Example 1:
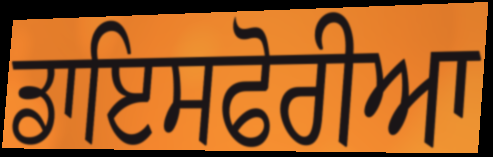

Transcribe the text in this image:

ਡਾਇਸਫੋਰੀਆ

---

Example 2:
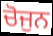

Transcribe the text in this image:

ਚੋਜੁਨ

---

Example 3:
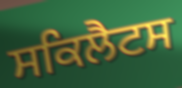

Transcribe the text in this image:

ਸਕਿਲੈਟਸ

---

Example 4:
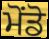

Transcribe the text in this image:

ਮੋਂਡੋ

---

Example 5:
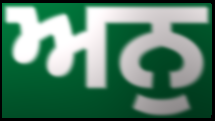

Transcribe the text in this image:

ਅਨੁ